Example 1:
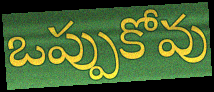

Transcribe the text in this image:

ఒప్పుకోవు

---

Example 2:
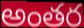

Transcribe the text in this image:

అంతర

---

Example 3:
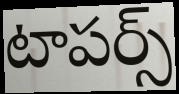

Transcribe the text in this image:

టాపర్స్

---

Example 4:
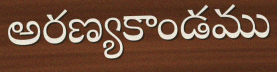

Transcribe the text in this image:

అరణ్యకాండము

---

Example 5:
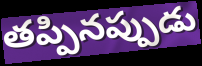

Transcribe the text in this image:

తప్పినప్పుడు